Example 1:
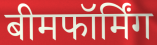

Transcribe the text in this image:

बीमफॉर्मिंग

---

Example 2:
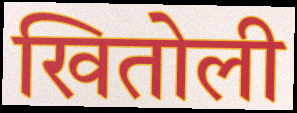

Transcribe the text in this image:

खितोली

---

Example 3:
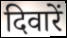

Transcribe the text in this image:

दिवारें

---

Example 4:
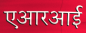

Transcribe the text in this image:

एआरआई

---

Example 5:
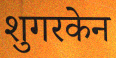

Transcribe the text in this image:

शुगरकेन